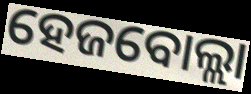
ହେଜବୋଲ୍ଲା